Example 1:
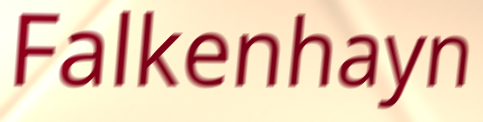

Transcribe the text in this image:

Falkenhayn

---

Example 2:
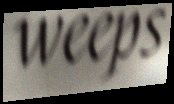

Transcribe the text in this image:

weeps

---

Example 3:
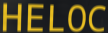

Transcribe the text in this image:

HELOC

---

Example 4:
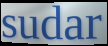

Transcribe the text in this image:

sudar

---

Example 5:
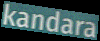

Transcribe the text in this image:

kandara